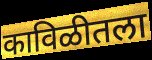
काविळीतला